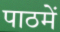
पाठमें